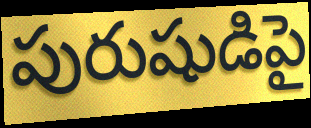
పురుషుడిపై